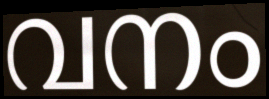
വനം